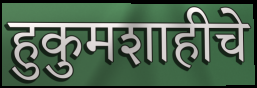
हुकुमशाहीचे